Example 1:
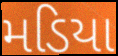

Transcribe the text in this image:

મડિયા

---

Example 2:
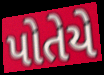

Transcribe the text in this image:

પોતેયે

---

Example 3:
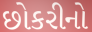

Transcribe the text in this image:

છોકરીનો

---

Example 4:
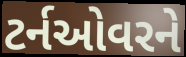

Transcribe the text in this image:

ટર્નઓવરને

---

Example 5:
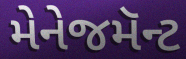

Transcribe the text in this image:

મેનેજમૅન્ટ